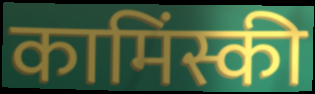
कामिंस्की